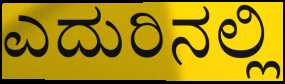
ಎದುರಿನಲ್ಲಿ